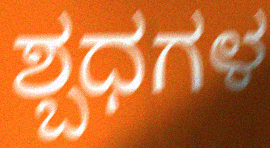
ಶ್ಬಧಗಳ